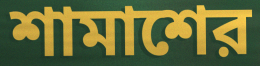
শামাশের